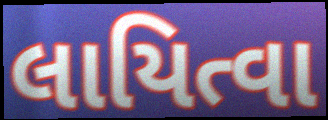
લાયિત્વા